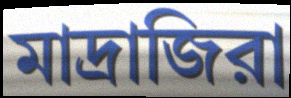
মাদ্রাজিরা